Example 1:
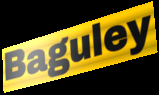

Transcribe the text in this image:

Baguley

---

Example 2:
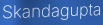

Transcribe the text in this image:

Skandagupta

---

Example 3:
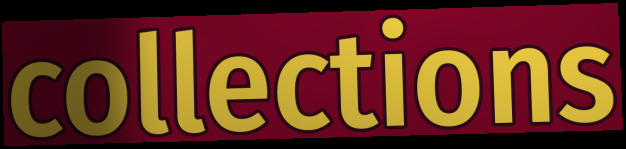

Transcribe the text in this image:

collections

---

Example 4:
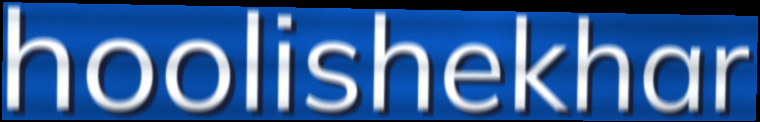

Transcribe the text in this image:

hoolishekhar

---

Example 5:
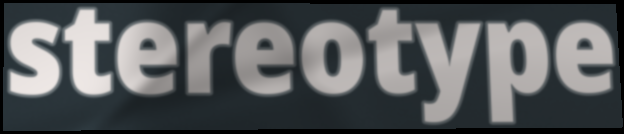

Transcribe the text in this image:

stereotype